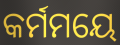
କର୍ମମୟେ